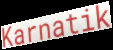
Karnatik